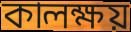
কালক্ষয়